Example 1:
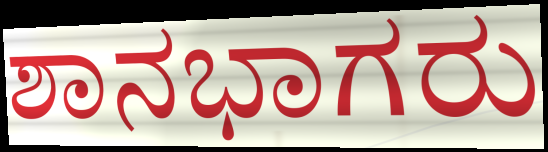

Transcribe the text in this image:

ಶಾನಭಾಗರು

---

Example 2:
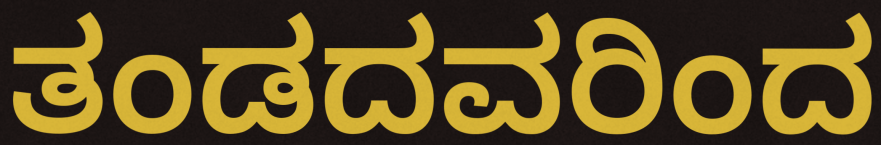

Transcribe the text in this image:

ತಂಡದವರಿಂದ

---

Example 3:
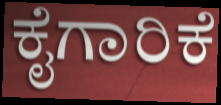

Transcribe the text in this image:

ಕೈಗಾರಿಕೆ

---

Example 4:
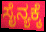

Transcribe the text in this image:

ಸೈನ್ಯಕ್ಕೆ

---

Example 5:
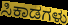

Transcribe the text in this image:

ಸಿಕಾಡಗಳು